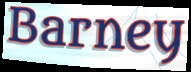
Barney